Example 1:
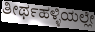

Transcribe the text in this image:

ತೀರ್ಥಹಳ್ಳಿಯಲ್ಲೇ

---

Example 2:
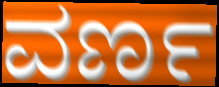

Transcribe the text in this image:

ವರ್ಣ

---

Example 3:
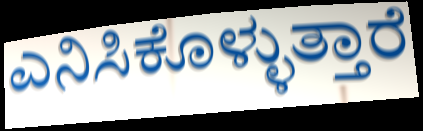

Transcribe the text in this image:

ಎನಿಸಿಕೊಳ್ಳುತ್ತಾರೆ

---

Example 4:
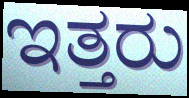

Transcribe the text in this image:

ಇತ್ತರು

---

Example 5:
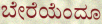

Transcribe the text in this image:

ಬೇರೆಯೆಂದೂ